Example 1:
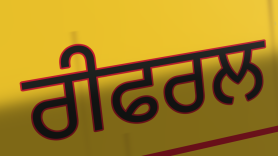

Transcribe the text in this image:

ਰੀਫਰਲ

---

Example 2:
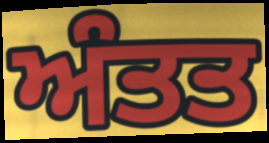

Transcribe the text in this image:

ਅੰਤਤ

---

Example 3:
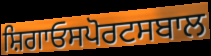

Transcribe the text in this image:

ਸ਼ਿਗਾਓਸਪੋਰਟਸਬਾਲ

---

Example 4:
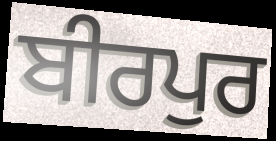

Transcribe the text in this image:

ਬੀਰਪੁਰ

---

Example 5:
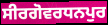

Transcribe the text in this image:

ਸੀਰਗੋਵਰਧਨਪੁਰ